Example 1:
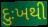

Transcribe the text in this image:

દુઃખથી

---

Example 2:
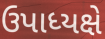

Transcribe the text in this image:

ઉપાધ્યક્ષે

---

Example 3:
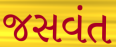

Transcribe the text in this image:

જસવંત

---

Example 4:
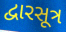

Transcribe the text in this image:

દ્વારસૂત્ર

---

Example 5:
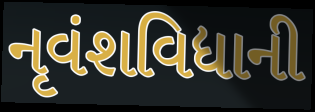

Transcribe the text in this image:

નૃવંશવિદ્યાની